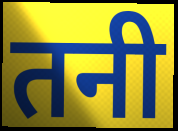
तनी